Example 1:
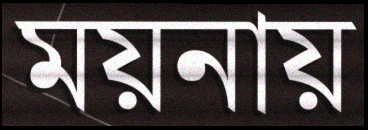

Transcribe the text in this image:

ময়নায়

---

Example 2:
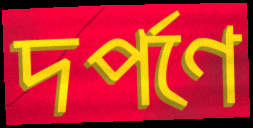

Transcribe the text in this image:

দর্পণে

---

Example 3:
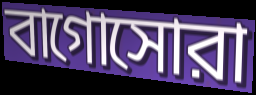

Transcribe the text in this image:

বাগোসোরা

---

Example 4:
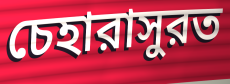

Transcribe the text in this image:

চেহারাসুরত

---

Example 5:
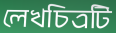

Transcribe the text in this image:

লেখচিত্রটি